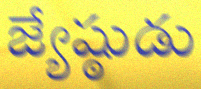
జ్యేష్ఠుడు